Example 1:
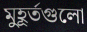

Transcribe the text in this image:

মুহূর্তগুলো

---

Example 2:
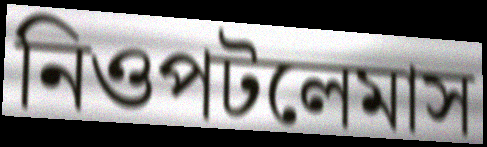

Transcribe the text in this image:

নিওপটলেমাস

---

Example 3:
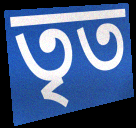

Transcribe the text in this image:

তৃত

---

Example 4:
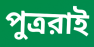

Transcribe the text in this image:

পুত্ররাই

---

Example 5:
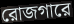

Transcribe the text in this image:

রোজগারে